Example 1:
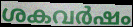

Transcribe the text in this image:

ശകവർഷം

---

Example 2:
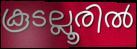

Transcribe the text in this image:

കൂടല്ലൂരിൽ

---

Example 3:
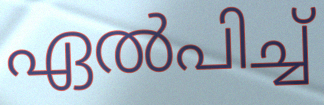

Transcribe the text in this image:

ഏൽപിച്ച്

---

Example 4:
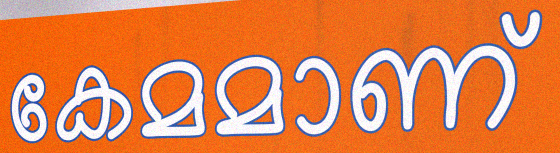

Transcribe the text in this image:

കേമമാണ്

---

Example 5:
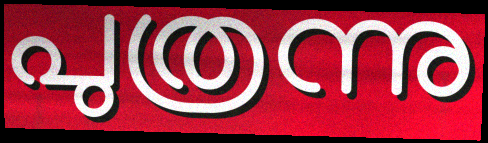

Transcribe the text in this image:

പുത്രന്നു